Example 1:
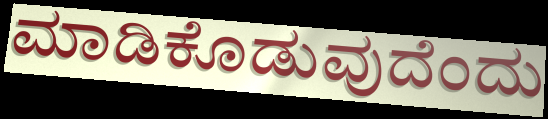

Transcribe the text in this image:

ಮಾಡಿಕೊಡುವುದೆಂದು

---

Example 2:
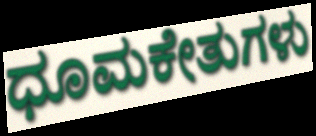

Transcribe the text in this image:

ಧೂಮಕೇತುಗಳು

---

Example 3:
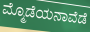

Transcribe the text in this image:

ಮ್ಮೊಡೆಯನಾವೆಡೆ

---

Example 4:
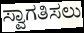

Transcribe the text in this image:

ಸ್ವಾಗತಿಸಲು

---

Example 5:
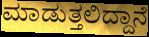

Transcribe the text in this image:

ಮಾಡುತ್ತಲಿದ್ದಾನೆ